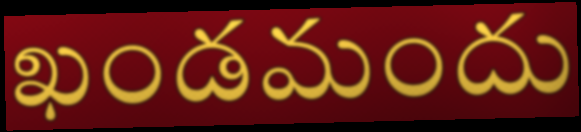
ఖండమందు